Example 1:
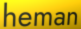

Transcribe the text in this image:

heman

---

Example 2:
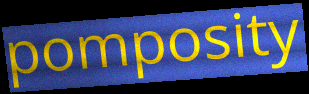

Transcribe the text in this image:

pomposity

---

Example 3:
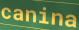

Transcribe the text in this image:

canina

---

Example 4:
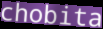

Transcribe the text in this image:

chobita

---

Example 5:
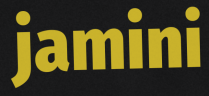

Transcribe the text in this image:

jamini